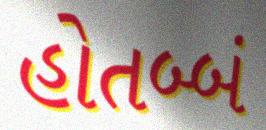
હોતબ્બં